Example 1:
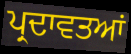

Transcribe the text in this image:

ਪ੍ਰਦਾਵਤਆਂ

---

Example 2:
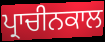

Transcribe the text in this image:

ਪ੍ਰਾਚੀਨਕਾਲ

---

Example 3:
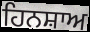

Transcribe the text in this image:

ਹਿਨਸ਼ਾਅ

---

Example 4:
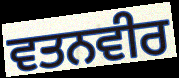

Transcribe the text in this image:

ਵਤਨਵੀਰ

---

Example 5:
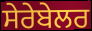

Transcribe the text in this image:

ਸੇਰੇਬੇਲਰ